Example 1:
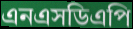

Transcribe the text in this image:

এনএসডিএপি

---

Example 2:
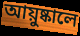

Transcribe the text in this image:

আয়ুষ্কালে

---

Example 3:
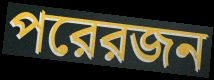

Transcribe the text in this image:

পরেরজন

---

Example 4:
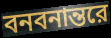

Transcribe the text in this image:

বনবনান্তরে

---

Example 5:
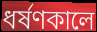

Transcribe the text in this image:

ধর্ষণকালে